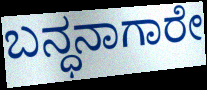
ಬನ್ಧನಾಗಾರೇ